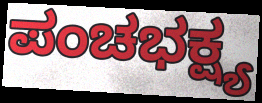
ಪಂಚಭಕ್ಷ್ಯ